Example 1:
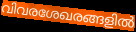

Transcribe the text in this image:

വിവരശേഖരങ്ങളിൽ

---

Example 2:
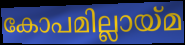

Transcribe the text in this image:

കോപമില്ലായ്മ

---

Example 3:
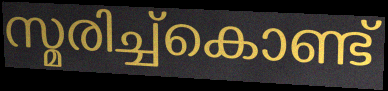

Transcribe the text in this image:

സ്മരിച്ച്കൊണ്ട്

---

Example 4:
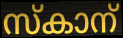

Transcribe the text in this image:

സ്കാന്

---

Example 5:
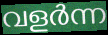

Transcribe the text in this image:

വളർന്ന